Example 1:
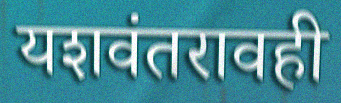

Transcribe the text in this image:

यशवंतरावही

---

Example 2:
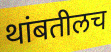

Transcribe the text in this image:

थांबतीलच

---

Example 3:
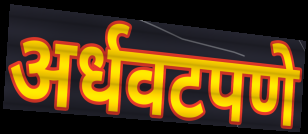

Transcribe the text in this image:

अर्धवटपणे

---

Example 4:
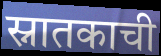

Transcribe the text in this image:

स्नातकाची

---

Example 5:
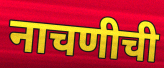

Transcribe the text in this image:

नाचणीची